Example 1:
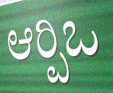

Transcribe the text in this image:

ಆರ್‍ಪಿಒ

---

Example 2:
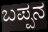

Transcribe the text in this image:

ಬಪ್ಪನ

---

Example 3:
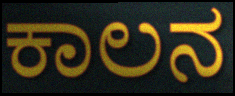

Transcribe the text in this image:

ಕಾಲನ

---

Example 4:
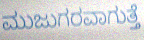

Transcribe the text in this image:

ಮುಜುಗರವಾಗುತ್ತೆ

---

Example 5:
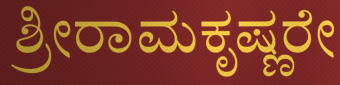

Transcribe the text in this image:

ಶ್ರೀರಾಮಕೃಷ್ಣರೇ